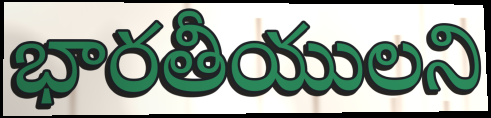
భారతీయులని